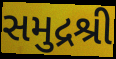
સમુદ્રશ્રી